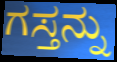
ಗಸ್ತನ್ನು